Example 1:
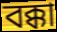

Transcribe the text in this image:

বক্কা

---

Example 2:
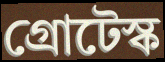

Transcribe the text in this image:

গ্রোটেস্ক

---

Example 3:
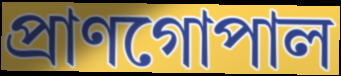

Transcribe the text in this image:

প্রাণগোপাল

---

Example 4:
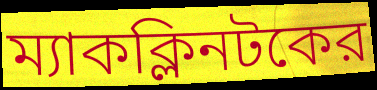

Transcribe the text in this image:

ম্যাকক্লিনটকের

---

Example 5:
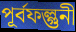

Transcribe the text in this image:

পূর্বফল্গুনী